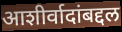
आशीर्वादांबद्दल